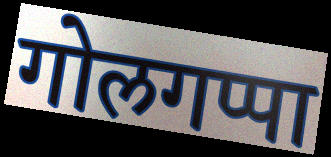
गोलगप्पा